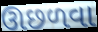
ઊછળવા